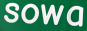
sowa